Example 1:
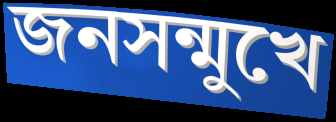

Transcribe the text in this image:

জনসন্মুখে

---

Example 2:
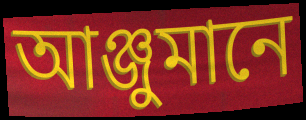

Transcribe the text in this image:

আঞ্জুমানে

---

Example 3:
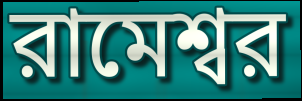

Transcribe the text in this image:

রামেশ্বর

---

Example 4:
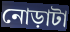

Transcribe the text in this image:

নোড়াটা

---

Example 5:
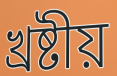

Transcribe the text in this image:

খ্রষ্টীয়